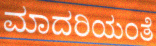
ಮಾದರಿಯಂತೆ